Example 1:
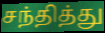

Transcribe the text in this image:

சந்தித்து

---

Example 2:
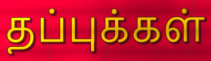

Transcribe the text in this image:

தப்புக்கள்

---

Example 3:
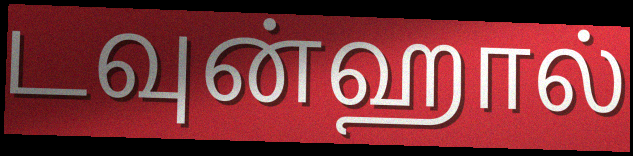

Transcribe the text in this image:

டவுன்ஹால்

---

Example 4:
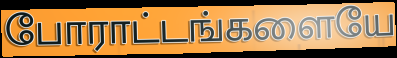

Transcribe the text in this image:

போராட்டங்களையே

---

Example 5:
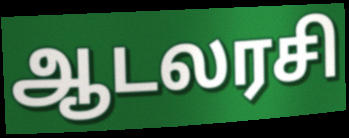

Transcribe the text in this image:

ஆடலரசி